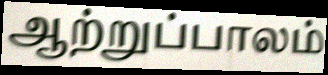
ஆற்றுப்பாலம்